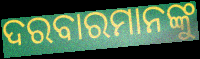
ଦରବାରମାନଙ୍କୁ